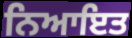
ਨਿਆਇਤ